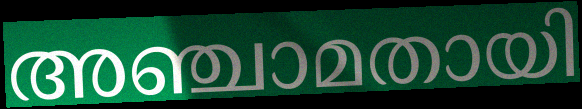
അഞ്ചാമതായി